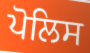
ਪੋਲਿਸ